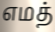
எமத்